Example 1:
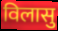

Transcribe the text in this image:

विलासु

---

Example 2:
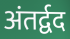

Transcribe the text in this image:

अंतर्द्वद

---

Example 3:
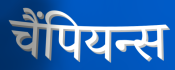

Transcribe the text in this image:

चैंपियन्स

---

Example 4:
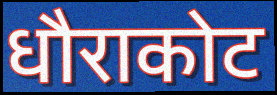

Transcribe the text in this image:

धौराकोट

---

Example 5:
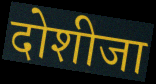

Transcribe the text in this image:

दोशीजा